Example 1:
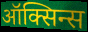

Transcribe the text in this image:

ऑक्सिन्स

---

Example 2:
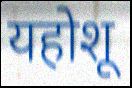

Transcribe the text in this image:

यहोशू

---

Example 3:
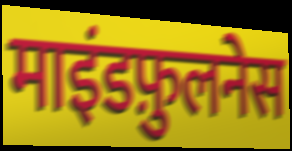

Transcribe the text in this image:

माइंडफ़ुलनेस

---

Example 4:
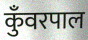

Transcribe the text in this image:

कुँवरपाल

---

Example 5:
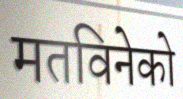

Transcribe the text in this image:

मतविनेको